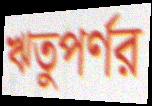
ঋতুপর্ণর